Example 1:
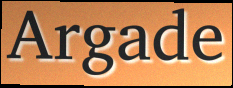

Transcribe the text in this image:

Argade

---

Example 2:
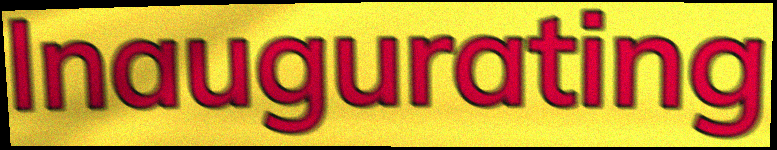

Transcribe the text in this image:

Inaugurating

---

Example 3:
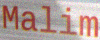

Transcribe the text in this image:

Malim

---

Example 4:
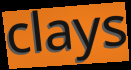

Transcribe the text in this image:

clays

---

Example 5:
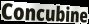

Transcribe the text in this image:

Concubine